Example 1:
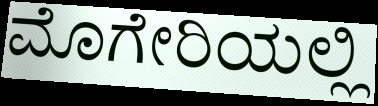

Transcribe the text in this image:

ಮೊಗೇರಿಯಲ್ಲಿ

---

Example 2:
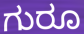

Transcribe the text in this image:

ಗುರೂ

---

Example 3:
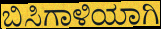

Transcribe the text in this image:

ಬಿಸಿಗಾಳಿಯಾಗಿ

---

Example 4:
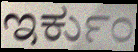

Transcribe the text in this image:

ಇರ್ಕುಂ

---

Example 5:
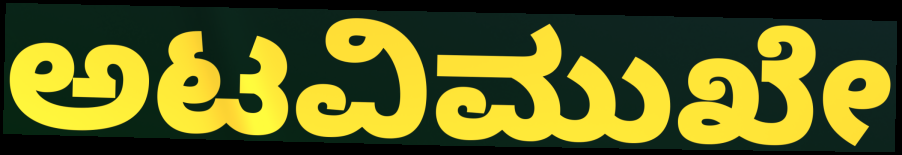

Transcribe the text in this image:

ಅಟವಿಮುಖೇ